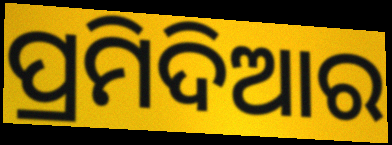
ପ୍ରମିଦିଆର